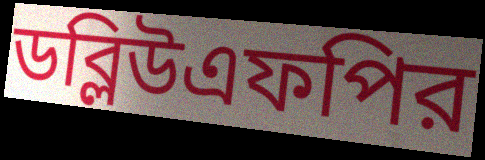
ডব্লিউএফপির